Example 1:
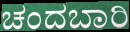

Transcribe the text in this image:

ಚಂದಬಾರಿ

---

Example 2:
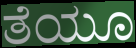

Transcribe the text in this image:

ತೆಯೂ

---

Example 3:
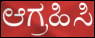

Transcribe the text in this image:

ಆಗ್ರಹಿಸಿ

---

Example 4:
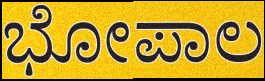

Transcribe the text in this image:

ಭೋಪಾಲ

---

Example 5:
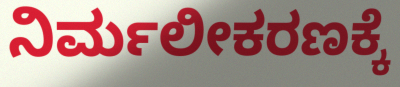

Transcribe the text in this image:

ನಿರ್ಮಲೀಕರಣಕ್ಕೆ